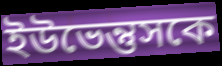
ইউভেন্তুসকে